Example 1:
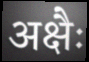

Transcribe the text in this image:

अक्षैः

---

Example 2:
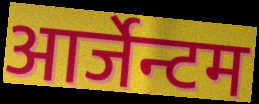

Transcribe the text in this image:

आर्जेन्टम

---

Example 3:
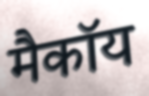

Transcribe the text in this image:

मैकॉय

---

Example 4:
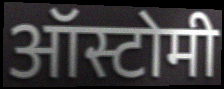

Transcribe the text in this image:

ऑस्टोमी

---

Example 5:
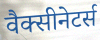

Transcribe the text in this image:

वैक्सीनेटर्स